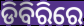
ଡିବିରିରେ